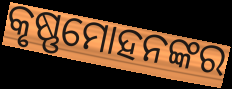
କୃଷ୍ଣମୋହନଙ୍କର